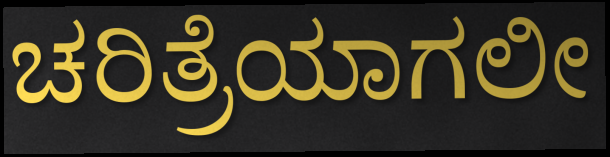
ಚರಿತ್ರೆಯಾಗಲೀ